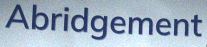
Abridgement